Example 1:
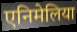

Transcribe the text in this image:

एनिमेलिया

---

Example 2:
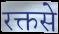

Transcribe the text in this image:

रक्तसे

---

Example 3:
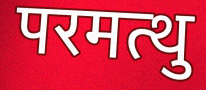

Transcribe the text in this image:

परमत्थु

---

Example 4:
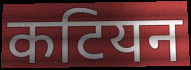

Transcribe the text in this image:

कटियन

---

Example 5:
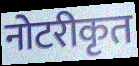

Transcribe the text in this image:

नोटरीकृत